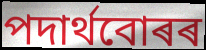
পদাৰ্থবোৰৰ